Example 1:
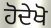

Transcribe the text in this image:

ਹੋਦੇਖੋ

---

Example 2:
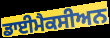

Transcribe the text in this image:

ਡਾਈਮੈਕਸੀਅਨ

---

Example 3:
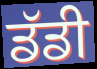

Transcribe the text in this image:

ਡੱਡੀ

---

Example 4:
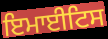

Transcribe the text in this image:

ਇਮਾਈਟਿਸ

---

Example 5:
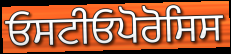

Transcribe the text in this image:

ਓਸਟੀਓਪੋਰੋਸਿਸ